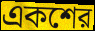
একশের